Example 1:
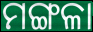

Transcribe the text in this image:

ମଙ୍ଗଳା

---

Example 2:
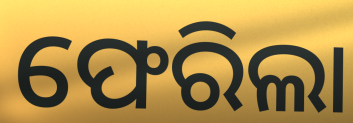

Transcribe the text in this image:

ଫେରିଲା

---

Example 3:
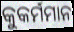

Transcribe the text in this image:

କୁକର୍ମମାନ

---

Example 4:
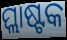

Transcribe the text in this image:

ପ୍ଲାଷ୍ଟକ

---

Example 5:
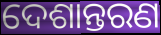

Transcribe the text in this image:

ଦେଶାନ୍ତରଣ